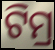
ଟିମ୍ର